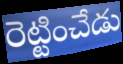
రెట్టించేడు